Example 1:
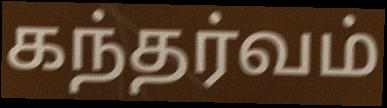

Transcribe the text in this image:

கந்தர்வம்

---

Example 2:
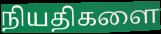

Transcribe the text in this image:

நியதிகளை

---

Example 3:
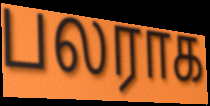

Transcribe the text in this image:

பலராக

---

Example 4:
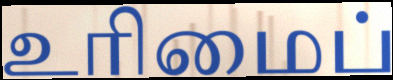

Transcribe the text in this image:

உரிமைப்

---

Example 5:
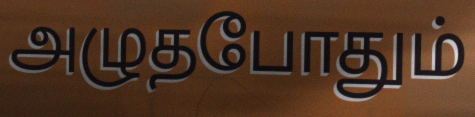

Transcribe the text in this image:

அழுதபோதும்